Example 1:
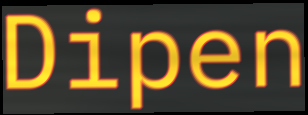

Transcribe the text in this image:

Dipen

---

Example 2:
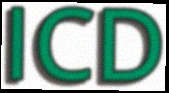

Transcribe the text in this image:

ICD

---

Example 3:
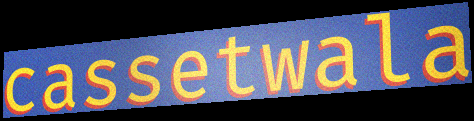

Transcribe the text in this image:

cassetwala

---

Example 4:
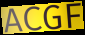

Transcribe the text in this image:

ACGF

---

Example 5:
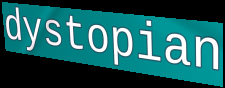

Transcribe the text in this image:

dystopian